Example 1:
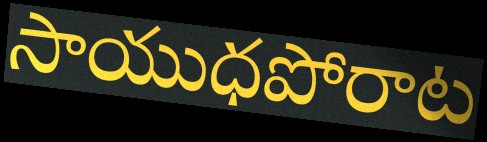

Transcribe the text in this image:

సాయుధపోరాట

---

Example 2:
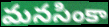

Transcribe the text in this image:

మనసింకా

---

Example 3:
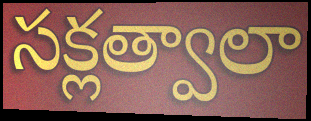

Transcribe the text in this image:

సక్లత్వాలా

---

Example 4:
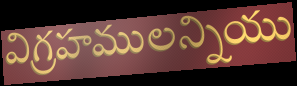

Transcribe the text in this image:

విగ్రహములన్నియు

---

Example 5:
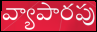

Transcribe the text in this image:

వ్యాపారపు